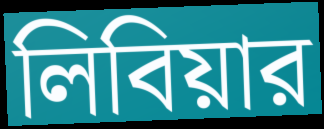
লিবিয়ার